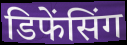
डिफेंसिंग